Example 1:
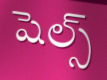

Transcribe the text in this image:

షెల్స్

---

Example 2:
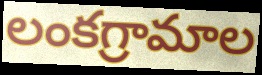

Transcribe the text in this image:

లంకగ్రామాల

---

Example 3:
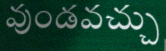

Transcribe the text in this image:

వుండవచ్చు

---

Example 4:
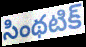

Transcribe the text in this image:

సింథటిక్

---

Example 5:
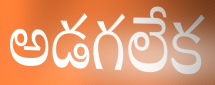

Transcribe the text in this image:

అడగలేక